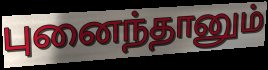
புனைந்தானும்